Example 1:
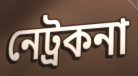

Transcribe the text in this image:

নেট্ৰকনা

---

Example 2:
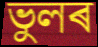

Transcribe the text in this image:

ভুলৰ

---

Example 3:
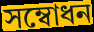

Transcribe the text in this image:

সম্বোধন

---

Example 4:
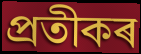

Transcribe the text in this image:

প্ৰতীকৰ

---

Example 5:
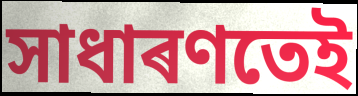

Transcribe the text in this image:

সাধাৰণতেই